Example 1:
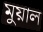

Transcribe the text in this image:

মুয়াল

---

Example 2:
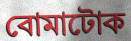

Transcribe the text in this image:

বোমাটোক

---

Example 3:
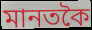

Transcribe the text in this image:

মানতকৈ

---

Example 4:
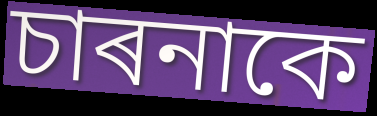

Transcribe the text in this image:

চাৰনাকে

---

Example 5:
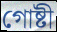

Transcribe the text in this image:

গোষ্টী